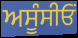
ਅਸੂੰਸੀਓਂ